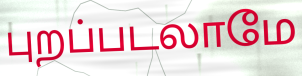
புறப்படலாமே